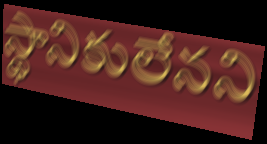
స్థానికులేనని